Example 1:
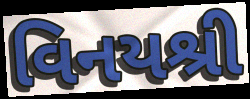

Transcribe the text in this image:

વિનયશ્રી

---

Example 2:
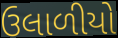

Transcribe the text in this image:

ઉલાળીયો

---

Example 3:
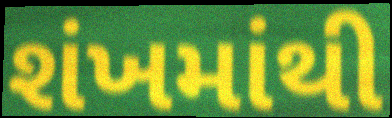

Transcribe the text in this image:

શંખમાંથી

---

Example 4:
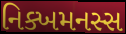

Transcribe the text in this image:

નિક્ખમનસ્સ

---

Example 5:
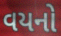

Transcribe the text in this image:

વયનો